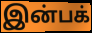
இன்பக்